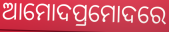
ଆମୋଦପ୍ରମୋଦରେ